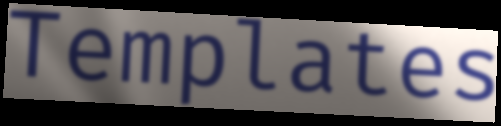
Templates